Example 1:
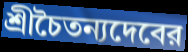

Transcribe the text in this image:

শ্রীচৈতন্যদেবের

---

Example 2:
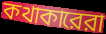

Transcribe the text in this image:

কথাকারেরা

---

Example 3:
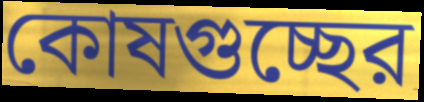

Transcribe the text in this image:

কোষগুচ্ছের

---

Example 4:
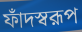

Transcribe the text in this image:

ফাঁদস্বরূপ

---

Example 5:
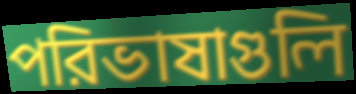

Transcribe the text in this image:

পরিভাষাগুলি